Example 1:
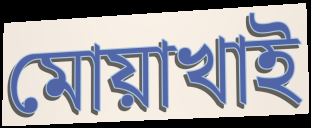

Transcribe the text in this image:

মোয়াখাই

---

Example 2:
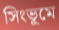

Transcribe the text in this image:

সিংভূমে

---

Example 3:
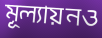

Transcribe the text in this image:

মূল্যায়নও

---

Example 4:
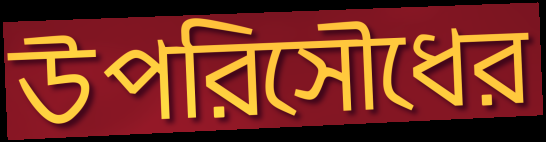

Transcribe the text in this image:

উপরিসৌধের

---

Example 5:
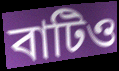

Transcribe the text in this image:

বাটিও